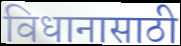
विधानासाठी